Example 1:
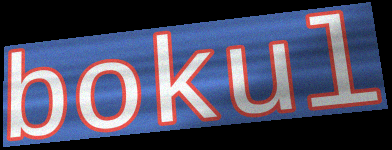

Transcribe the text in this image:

bokul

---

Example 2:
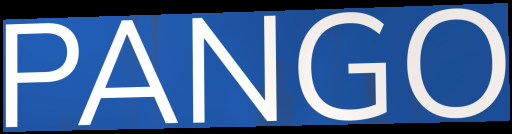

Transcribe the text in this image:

PANGO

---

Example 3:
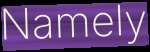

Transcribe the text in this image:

Namely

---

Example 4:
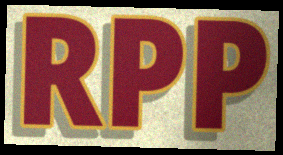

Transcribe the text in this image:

RPP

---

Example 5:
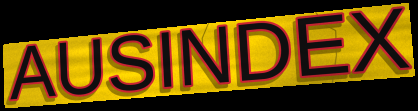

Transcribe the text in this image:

AUSINDEX